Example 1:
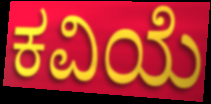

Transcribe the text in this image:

ಕವಿಯೆ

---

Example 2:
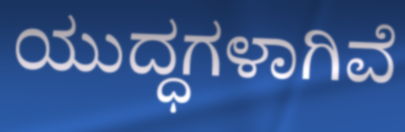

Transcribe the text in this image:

ಯುದ್ಧಗಳಾಗಿವೆ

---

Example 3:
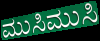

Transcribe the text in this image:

ಮುಸಿಮುಸಿ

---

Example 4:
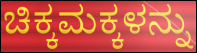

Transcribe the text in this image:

ಚಿಕ್ಕಮಕ್ಕಳನ್ನು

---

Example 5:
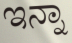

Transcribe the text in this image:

ಇನ್ನಾ